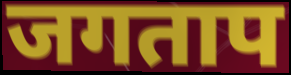
जगताप